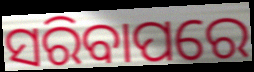
ସରିବାପରେ